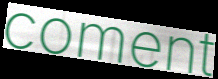
coment